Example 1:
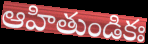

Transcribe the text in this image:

ఆహితుండికః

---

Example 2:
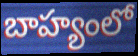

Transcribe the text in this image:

బాహ్యంలో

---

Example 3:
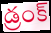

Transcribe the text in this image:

డ్రంక్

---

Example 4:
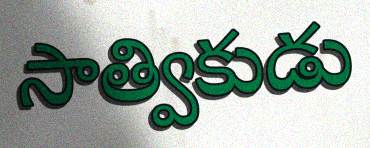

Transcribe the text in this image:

సాత్వికుడు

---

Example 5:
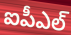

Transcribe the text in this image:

ఐపీఎల్